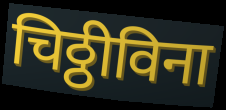
चिठ्ठीविना